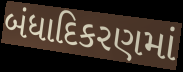
બંધાદિકરણમાં